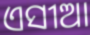
ଏସୀଆ